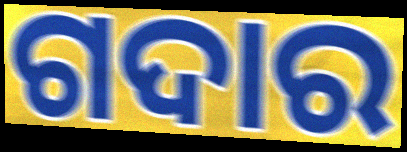
ଗଦାର